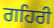
ਗਹਿਰੀ